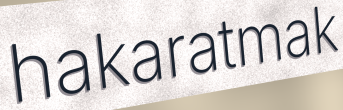
hakaratmak